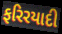
ફરિરયાદી